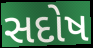
સદોષ